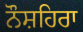
ਨੌਸ਼ਹਿਰਾ